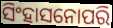
ସିଂହାସନୋପରି